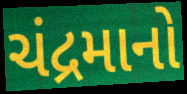
ચંદ્રમાનો